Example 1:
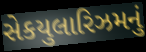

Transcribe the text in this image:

સેકયુલારિઝમનું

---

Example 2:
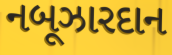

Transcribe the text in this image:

નબૂઝારદાન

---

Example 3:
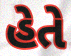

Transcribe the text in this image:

હેતે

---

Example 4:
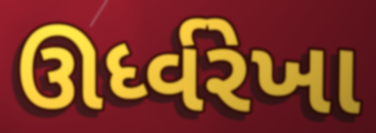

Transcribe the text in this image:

ઊર્ધ્વરેખા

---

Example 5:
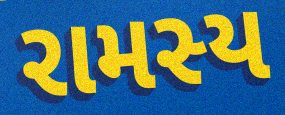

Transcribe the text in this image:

રામસ્ય